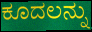
ಕೂದಲನ್ನು